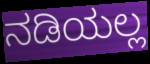
ನಡಿಯಲ್ಲ